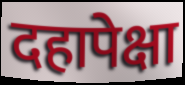
दहापेक्षा